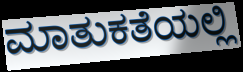
ಮಾತುಕತೆಯಲ್ಲಿ